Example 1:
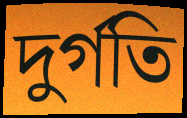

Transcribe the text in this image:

দুৰ্গতি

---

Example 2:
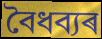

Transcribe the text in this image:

বৈধব্যৰ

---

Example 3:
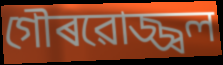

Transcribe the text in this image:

গৌৰৱোজ্জ্বল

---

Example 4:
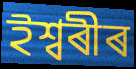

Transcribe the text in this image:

ইশ্বৰীৰ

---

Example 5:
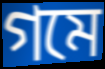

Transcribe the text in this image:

গমে